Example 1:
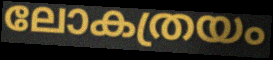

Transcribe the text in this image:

ലോകത്രയം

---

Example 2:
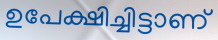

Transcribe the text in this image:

ഉപേക്ഷിച്ചിട്ടാണ്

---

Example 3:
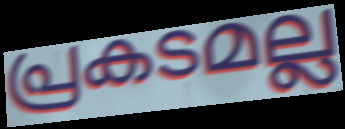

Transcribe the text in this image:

പ്രകടമല്ല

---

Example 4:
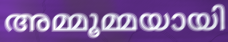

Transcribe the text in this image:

അമ്മൂമ്മയായി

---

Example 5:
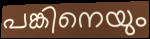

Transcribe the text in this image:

പങ്കിനെയും